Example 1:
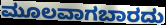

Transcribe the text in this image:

ಮೂಲವಾಗಬಾರದು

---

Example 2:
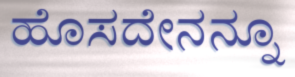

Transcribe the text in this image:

ಹೊಸದೇನನ್ನೂ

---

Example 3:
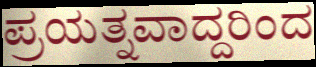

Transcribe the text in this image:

ಪ್ರಯತ್ನವಾದ್ದರಿಂದ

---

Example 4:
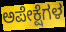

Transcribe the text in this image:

ಅಪೇಕ್ಷೆಗಳ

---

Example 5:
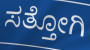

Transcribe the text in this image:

ಸತ್ತೋಗಿ